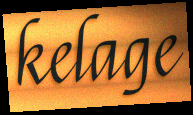
kelage